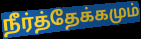
நீர்த்தேக்கமும்